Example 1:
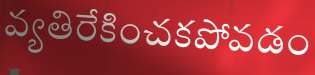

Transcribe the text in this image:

వ్యతిరేకించకపోవడం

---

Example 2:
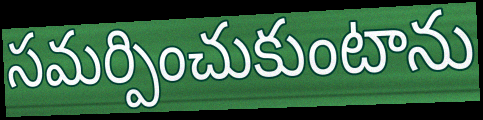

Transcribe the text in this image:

సమర్పించుకుంటాను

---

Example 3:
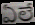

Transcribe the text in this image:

ఏలే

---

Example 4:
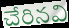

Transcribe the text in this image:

చేరినవి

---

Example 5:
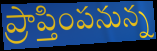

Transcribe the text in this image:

ప్రాప్తింపనున్న